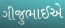
ગીજુભાઈએ